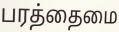
பரத்தைமை